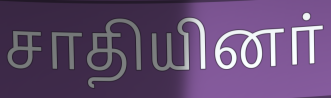
சாதியினர்